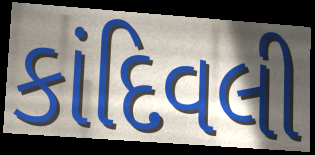
કાંદિવલી